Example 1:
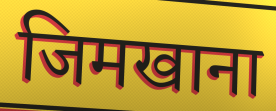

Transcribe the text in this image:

जिमखाना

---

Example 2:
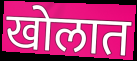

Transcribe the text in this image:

खोलात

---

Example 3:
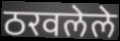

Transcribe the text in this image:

ठरवलेले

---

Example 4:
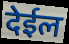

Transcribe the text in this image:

देईल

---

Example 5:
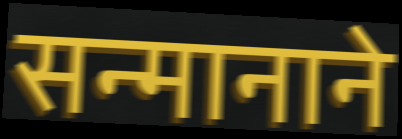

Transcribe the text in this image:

सन्मानाने